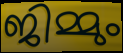
ജിമ്മും